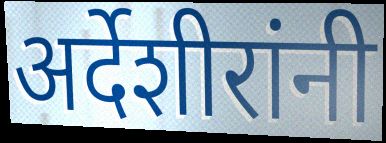
अर्देशीरांनी